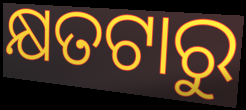
କ୍ଷତଟାରୁ